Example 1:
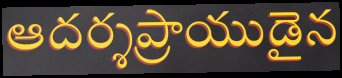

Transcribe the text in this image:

ఆదర్శప్రాయుడైన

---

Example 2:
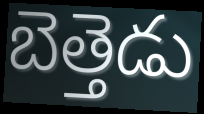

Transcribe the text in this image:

బెత్తెడు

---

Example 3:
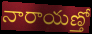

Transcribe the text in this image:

నారాయణ్తో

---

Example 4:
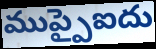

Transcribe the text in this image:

ముప్పైఐదు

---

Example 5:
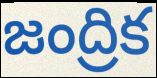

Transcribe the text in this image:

జంద్రిక